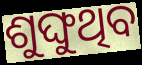
ଶୁଙ୍ଘୁଥିବ